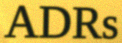
ADRs